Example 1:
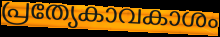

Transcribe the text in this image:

പ്രത്യേകാവകാശം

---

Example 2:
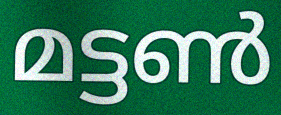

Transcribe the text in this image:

മട്ടൺ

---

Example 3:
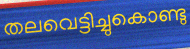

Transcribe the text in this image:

തലവെട്ടിച്ചുകൊണ്ടു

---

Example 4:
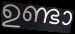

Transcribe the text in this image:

ഉണ്ടാ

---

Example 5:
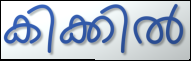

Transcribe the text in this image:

കിക്കിൽ